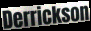
Derrickson